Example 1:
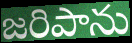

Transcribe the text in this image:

జరిపాను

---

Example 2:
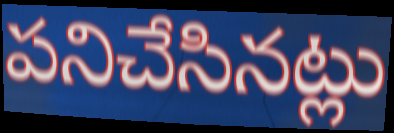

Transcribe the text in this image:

పనిచేసినట్లు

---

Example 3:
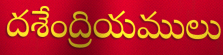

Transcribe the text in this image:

దశేంద్రియములు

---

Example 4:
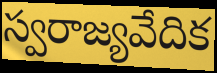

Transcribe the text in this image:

స్వరాజ్యవేదిక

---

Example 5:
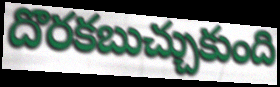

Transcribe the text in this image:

దొరకబుచ్చుకుంది